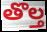
తొల్త